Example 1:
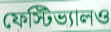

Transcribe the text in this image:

ফেস্টিভ্যালও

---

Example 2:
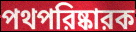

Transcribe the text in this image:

পথপরিষ্কারক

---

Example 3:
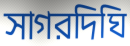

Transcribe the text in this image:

সাগরদিঘি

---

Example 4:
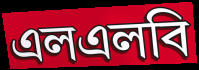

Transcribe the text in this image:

এলএলবি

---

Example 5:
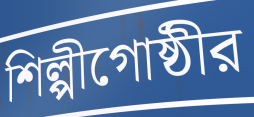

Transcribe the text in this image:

শিল্পীগোষ্ঠীর